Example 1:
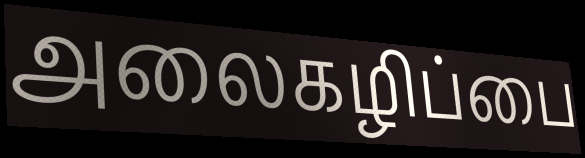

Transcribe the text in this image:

அலைகழிப்பை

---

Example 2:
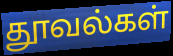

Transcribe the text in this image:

தூவல்கள்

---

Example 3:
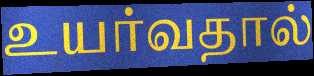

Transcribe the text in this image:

உயர்வதால்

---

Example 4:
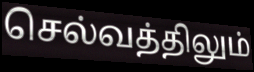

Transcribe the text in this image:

செல்வத்திலும்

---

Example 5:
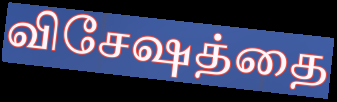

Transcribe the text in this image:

விசேஷத்தை